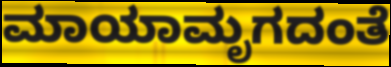
ಮಾಯಾಮೃಗದಂತೆ